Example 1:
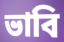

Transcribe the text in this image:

ভাবি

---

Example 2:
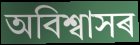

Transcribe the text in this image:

অবিশ্বাসৰ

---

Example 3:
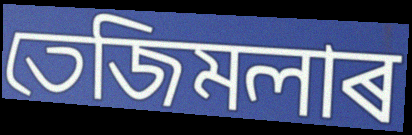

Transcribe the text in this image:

তেজিমলাৰ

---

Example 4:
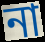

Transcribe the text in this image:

না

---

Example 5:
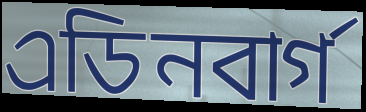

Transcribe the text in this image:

এডিনবাৰ্গ